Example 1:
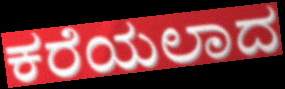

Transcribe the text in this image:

ಕರೆಯಲಾದ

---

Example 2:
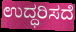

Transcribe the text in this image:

ಉದ್ಧರಿಸದೆ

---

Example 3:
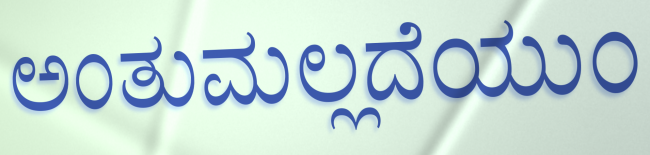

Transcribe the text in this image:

ಅಂತುಮಲ್ಲದೆಯುಂ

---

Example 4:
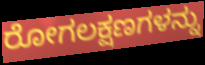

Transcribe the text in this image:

ರೋಗಲಕ್ಷಣಗಳನ್ನು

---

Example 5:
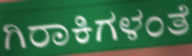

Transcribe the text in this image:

ಗಿರಾಕಿಗಳಂತೆ